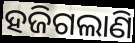
ହଜିଗଲାଣି